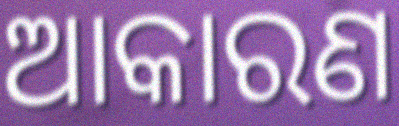
ଆକାରଣ